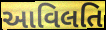
આવિલતિ